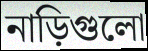
নাড়িগুলো